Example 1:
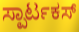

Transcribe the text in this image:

ಸ್ಪಾರ್ಟಕಸ್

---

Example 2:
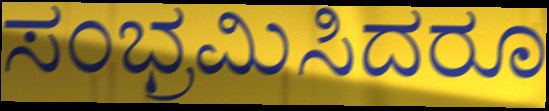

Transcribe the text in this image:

ಸಂಭ್ರಮಿಸಿದರೂ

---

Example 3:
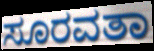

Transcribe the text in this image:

ಸೂರವತಾ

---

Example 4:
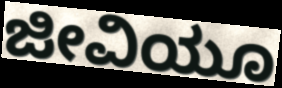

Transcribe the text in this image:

ಜೀವಿಯೂ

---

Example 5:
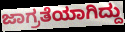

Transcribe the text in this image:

ಜಾಗ್ರತೆಯಾಗಿದ್ದು